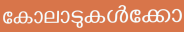
കോലാടുകൾക്കോ